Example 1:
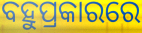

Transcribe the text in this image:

ବହୁପ୍ରକାରରେ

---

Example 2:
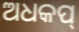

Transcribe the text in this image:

ଅଧକପ୍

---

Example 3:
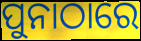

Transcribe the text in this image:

ପୁନାଠାରେ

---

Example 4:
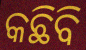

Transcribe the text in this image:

କଛିବି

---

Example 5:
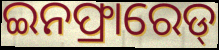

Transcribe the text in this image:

ଇନଫ୍ରାରେଡ୍